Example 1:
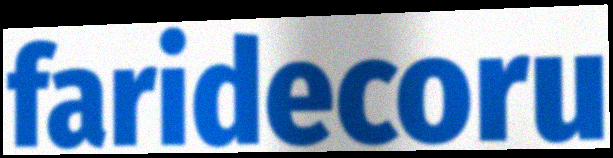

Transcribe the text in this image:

faridecoru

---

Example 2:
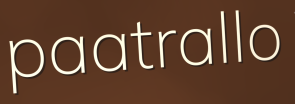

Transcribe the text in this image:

paatrallo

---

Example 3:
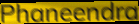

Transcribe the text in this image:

Phaneendra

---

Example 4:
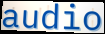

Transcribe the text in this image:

audio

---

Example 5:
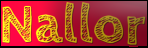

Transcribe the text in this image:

Nallor